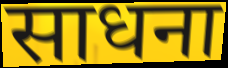
साधना